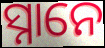
ସ୍ନାନେ